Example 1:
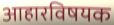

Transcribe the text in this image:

आहारविषयक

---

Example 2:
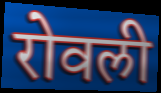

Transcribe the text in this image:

रोवली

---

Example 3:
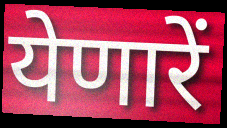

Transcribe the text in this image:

येणारें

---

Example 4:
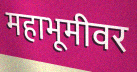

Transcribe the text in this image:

महाभूमीवर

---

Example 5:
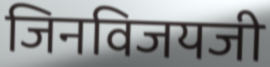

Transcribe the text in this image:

जिनविजयजी